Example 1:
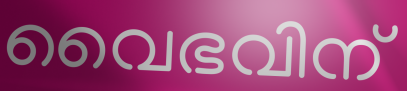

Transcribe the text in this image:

വൈഭവിന്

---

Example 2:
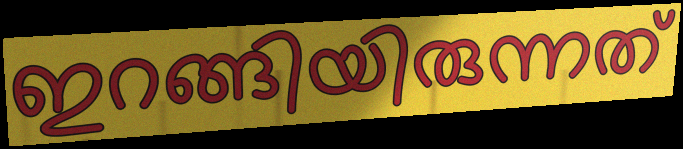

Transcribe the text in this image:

ഇറങ്ങിയിരുന്നത്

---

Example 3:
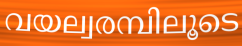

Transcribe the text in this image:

വയല്വരമ്പിലൂടെ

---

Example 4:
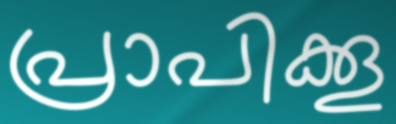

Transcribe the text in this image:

പ്രാപിക്കൂ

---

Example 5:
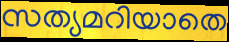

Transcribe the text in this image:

സത്യമറിയാതെ